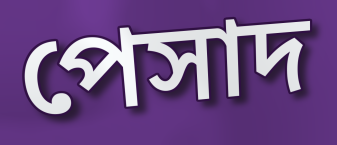
পেসাদ